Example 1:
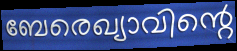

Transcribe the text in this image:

ബേരെഖ്യാവിന്റെ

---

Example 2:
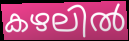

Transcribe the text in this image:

കഴലിൽ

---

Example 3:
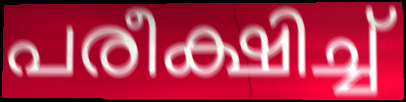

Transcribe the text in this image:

പരീക്ഷിച്ച്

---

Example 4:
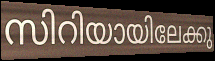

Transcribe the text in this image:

സിറിയായിലേക്കു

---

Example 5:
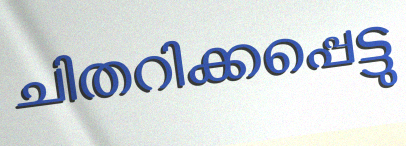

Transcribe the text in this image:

ചിതറിക്കപ്പെട്ടു